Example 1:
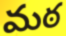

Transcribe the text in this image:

మఠ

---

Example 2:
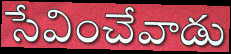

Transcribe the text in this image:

సేవించేవాడు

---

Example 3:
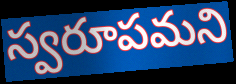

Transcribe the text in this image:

స్వరూపమని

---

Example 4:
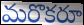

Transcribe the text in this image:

మరొకరూ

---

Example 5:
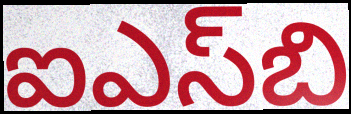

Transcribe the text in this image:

ఐఎస్‌బి